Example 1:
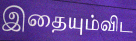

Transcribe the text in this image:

இதையும்விட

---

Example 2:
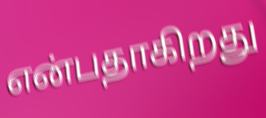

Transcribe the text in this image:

என்பதாகிறது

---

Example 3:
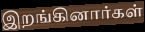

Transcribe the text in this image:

இறங்கினார்கள்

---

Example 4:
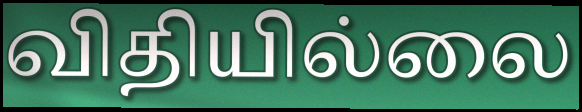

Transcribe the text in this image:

விதியில்லை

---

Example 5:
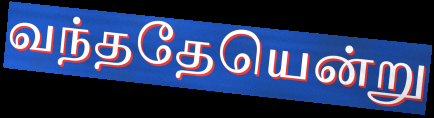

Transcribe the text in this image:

வந்ததேயென்று